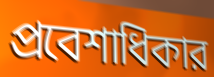
প্রবেশাধিকার